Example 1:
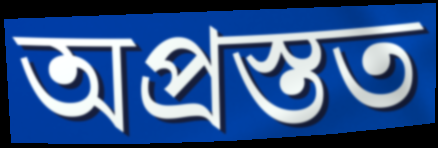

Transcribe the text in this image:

অপ্রস্তত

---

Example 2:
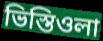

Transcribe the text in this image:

ভিস্তিওলা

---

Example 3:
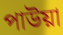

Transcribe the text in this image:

পাউয়া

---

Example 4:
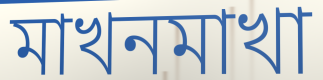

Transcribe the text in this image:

মাখনমাখা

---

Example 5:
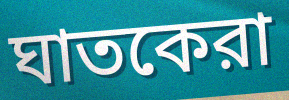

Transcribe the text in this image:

ঘাতকেরা